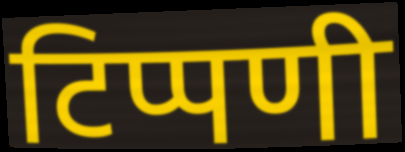
टिप्पणी